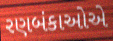
રણબંકાઓએ